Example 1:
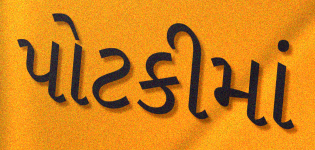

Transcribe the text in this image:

પોટકીમાં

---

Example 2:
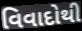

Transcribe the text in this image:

વિવાદોથી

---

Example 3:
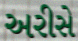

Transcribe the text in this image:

અરીસે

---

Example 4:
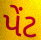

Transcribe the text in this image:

પેંટ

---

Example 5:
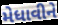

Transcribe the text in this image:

મેધાવીને